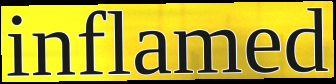
inflamed